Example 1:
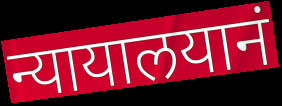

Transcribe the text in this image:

न्यायालयानं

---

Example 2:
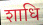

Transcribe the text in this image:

शाधि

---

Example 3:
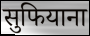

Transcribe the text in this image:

सुफियाना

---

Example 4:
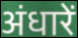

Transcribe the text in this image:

अंधारें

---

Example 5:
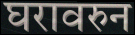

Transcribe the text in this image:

घरावरुन